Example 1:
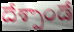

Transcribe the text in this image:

దేశ్పాండే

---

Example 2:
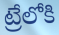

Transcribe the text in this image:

ట్రేలోకి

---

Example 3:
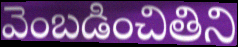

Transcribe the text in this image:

వెంబడించితిని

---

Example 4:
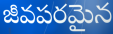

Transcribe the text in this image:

జీవపరమైన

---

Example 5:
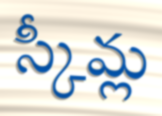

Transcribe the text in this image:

స్కీమ్ల